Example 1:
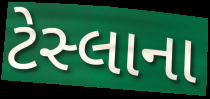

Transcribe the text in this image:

ટેસ્લાના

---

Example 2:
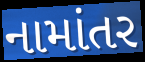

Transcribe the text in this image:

નામાંતર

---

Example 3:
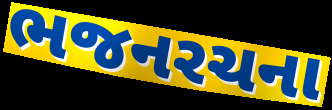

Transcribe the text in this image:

ભજનરચના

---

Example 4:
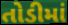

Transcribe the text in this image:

તોડીમાં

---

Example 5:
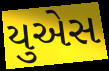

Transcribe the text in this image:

યુએસ